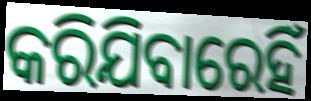
କରିଯିବାରେହିଁ